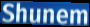
Shunem